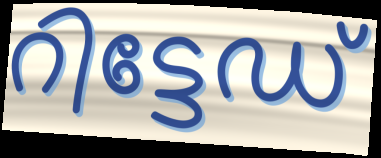
റിട്ടേഡ്